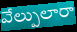
వేల్పులారా